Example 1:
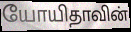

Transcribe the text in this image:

யோயிதாவின்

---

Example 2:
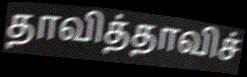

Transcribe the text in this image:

தாவித்தாவிச்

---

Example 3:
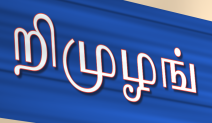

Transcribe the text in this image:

றிமுழங்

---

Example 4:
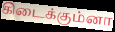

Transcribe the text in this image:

கிடைக்கும்னா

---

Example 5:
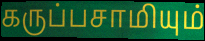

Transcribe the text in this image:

கருப்பசாமியும்